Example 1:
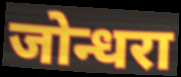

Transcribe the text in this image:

जोन्धरा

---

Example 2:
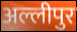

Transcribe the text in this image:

अल्लीपुर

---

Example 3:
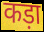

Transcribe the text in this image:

कड़ा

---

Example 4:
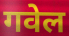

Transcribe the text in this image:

गवेल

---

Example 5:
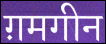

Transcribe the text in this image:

ग़मगीन